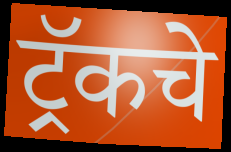
ट्रॅकचे